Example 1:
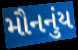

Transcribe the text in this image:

મૌનનુંય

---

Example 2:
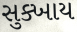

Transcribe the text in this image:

સુક્ખાય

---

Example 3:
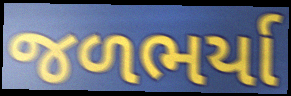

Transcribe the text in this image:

જળભર્યા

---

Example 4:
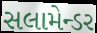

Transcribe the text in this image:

સલામેન્ડર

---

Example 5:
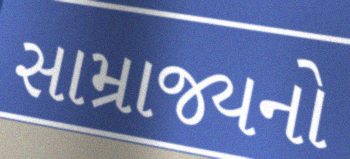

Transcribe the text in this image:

સામ્રાજ્યનો